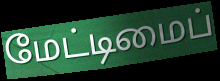
மேட்டிமைப்